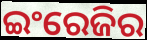
ଇଂରେଜିର